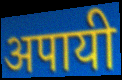
अपायी